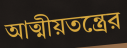
আত্মীয়তন্ত্রের